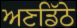
ਅਣਡਿੱਠੇ